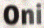
Oni